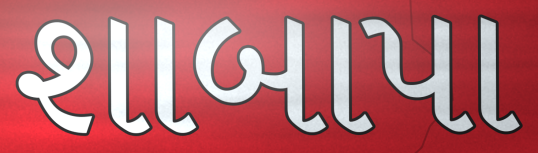
શાબાપા